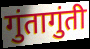
गुंतागुंती